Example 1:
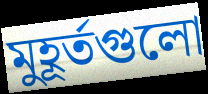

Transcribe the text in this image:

মুহূর্তগুলো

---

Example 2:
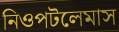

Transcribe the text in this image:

নিওপটলেমাস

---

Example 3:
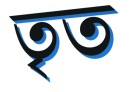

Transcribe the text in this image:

তৃত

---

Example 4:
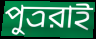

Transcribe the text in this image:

পুত্ররাই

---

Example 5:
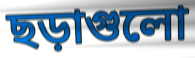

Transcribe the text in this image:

ছড়াগুলো